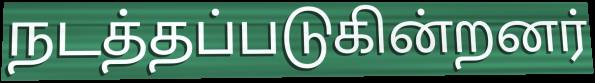
நடத்தப்படுகின்றனர்